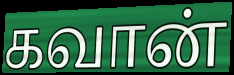
கவான்